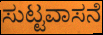
ಸುಟ್ಟವಾಸನೆ